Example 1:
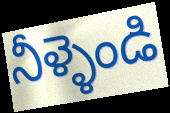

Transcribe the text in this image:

నీళ్ళెండి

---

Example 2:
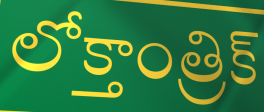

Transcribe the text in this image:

లోక్తాంత్రిక్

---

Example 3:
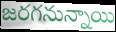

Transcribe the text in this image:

జరగనున్నాయి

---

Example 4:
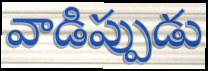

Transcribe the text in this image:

వాడిప్పుడు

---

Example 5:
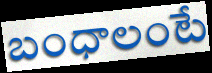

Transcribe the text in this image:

బంధాలంటే